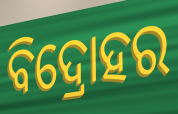
ବିଦ୍ରୋହର